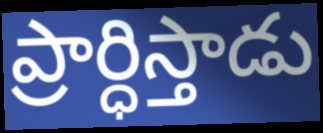
ప్రార్ధిస్తాడు